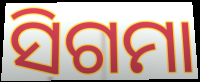
ସିଗମା